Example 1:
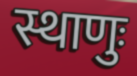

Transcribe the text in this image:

स्थाणुः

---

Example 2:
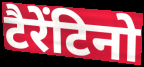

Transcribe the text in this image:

टैरेंटिनो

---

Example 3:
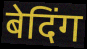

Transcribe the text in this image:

बेदिंग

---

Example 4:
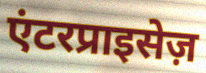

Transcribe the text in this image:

एंटरप्राइसेज़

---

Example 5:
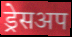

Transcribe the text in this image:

ड्रेसअप